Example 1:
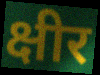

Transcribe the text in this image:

क्षीर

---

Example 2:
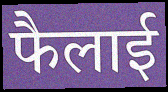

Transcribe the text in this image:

फैलाई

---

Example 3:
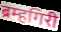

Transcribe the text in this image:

ब्रम्हगिरी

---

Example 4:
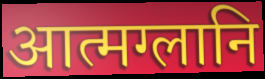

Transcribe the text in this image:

आत्मग्लानि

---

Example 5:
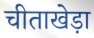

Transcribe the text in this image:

चीताखेड़ा